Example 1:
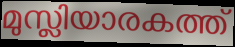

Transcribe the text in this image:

മുസ്ലിയാരകത്ത്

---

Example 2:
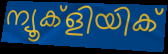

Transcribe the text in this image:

ന്യൂക്ളിയിക്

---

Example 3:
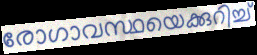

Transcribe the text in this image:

രോഗാവസ്ഥയെക്കുറിച്ച്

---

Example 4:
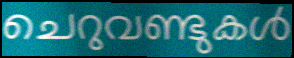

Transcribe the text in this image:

ചെറുവണ്ടുകൾ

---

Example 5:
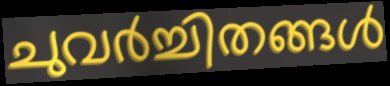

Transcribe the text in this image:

ചുവർച്ചിതങ്ങൾ